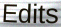
Edits